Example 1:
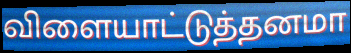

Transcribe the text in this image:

விளையாட்டுத்தனமா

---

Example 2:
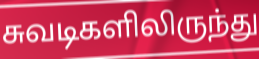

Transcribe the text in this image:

சுவடிகளிலிருந்து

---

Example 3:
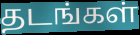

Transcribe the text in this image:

தடங்கள்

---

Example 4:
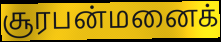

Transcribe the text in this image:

சூரபன்மனைக்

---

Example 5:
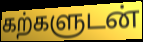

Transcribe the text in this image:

கற்களுடன்